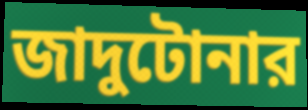
জাদুটোনার